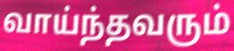
வாய்ந்தவரும்